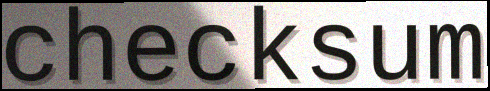
checksum